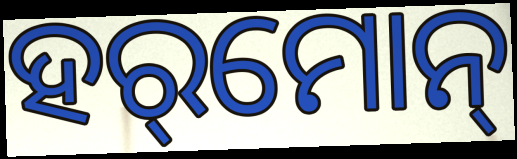
ହର୍‌ମୋନ୍